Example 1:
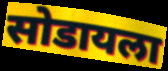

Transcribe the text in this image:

सोडायला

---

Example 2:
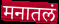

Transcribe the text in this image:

मनातलं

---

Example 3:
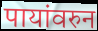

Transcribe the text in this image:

पायांवरुन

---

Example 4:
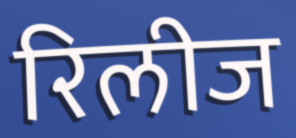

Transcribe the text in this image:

रिलीज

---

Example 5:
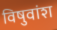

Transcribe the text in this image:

विषुवांश